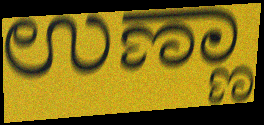
ಉಣ್ಣಾ